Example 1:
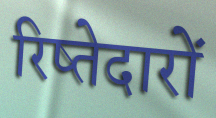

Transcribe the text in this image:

रिष्तेदारों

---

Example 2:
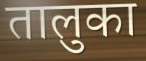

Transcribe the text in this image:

तालुका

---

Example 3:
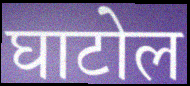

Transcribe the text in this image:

घाटोल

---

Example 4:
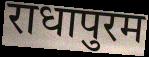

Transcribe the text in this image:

राधापुरम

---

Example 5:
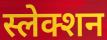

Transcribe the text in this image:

स्लेक्शन